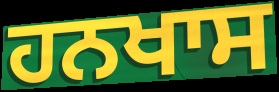
ਹਨਖਾਸ